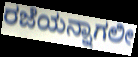
ರಜೆಯನ್ನಾಗಲೀ